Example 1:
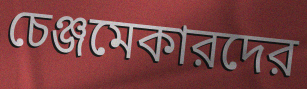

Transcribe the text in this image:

চেঞ্জমেকারদের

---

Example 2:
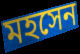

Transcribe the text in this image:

মহসেন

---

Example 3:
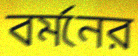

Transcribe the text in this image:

বর্মনের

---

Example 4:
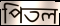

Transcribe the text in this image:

পিতল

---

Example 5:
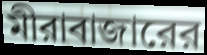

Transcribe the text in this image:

মীরাবাজারের